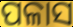
ପଳାସ